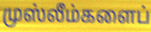
முஸ்லீம்களைப்